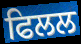
ਫਿਲਲ